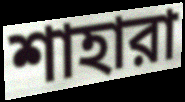
শাহারা